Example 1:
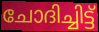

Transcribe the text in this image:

ചോദിച്ചിട്ട്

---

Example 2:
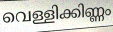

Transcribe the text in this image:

വെള്ളിക്കിണ്ണം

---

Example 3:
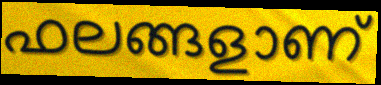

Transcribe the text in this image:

ഫലങ്ങളാണ്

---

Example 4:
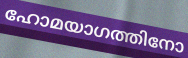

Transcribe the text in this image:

ഹോമയാഗത്തിനോ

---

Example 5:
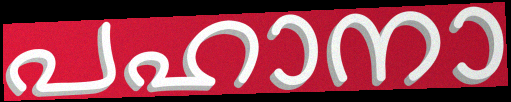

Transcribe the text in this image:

പഹാനാ